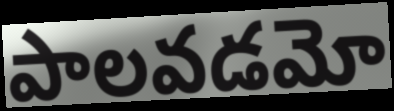
పాలవడమో